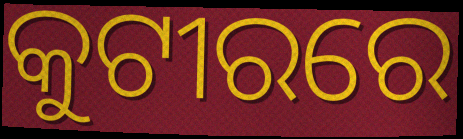
କୁଟୀରରେ